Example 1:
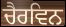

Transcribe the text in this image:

ਚੈਰਵਿਨ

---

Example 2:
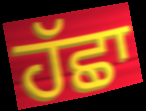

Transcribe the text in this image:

ਹੱਛਾ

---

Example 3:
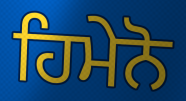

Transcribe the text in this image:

ਹਿਮੇਨੋ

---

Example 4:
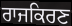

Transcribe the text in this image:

ਰਾਜਕਿਰਣ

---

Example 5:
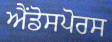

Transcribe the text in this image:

ਐਂਡੋਸਪੋਰਸ